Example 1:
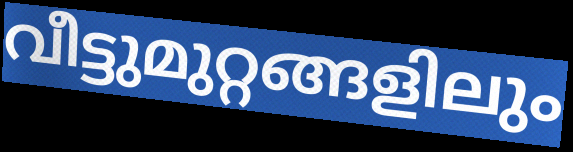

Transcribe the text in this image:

വീട്ടുമുറ്റങ്ങളിലും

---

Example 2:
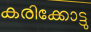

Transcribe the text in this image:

കരിക്കോട്ടു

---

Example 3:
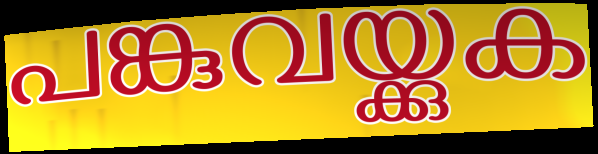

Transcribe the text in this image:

പങ്കുവയ്ക്കുക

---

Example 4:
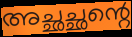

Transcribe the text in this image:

അച്ഛച്ഛന്റെ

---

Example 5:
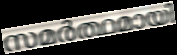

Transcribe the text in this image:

സമർത്ഥമായി